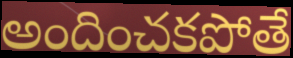
అందించకపోతే